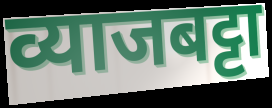
व्याजबट्टा